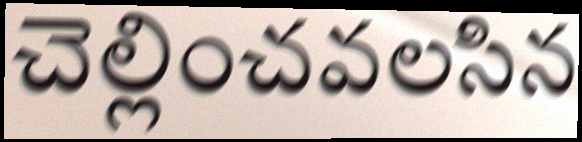
చెల్లించవలసిన